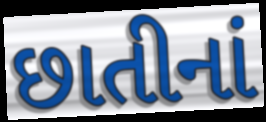
છાતીનાં